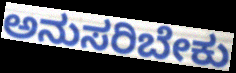
ಅನುಸರಿಬೇಕು